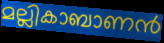
മല്ലികാബാണൻ